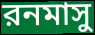
রনমাসু